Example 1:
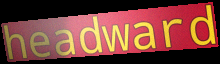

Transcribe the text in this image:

headward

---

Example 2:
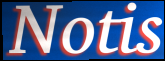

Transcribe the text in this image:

Notis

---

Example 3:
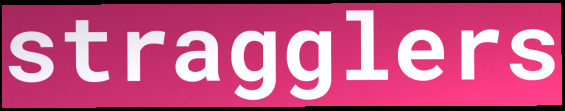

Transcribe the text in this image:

stragglers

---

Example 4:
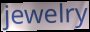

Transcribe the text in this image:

jewelry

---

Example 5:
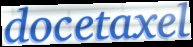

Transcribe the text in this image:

docetaxel